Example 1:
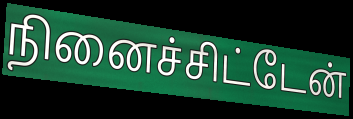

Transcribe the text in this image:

நினைச்சிட்டேன்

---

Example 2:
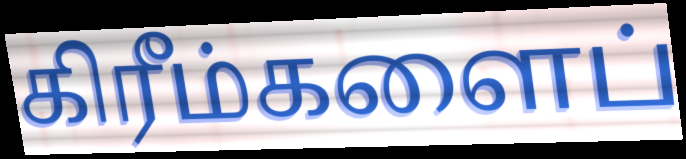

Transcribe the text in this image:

கிரீம்களைப்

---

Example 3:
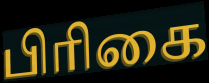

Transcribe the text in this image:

பிரிகை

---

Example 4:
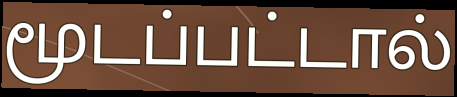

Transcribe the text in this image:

மூடப்பட்டால்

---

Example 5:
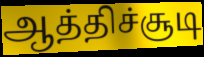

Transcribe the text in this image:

ஆத்திச்சூடி